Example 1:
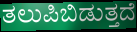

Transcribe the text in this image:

ತಲುಪಿಬಿಡುತ್ತದೆ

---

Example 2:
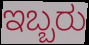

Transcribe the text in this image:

ಇಬ್ಬರು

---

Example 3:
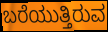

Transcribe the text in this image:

ಬರೆಯುತ್ತಿರುವ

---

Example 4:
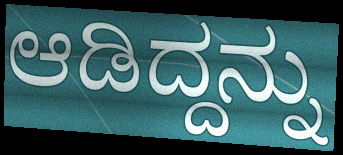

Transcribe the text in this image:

ಆಡಿದ್ದನ್ನು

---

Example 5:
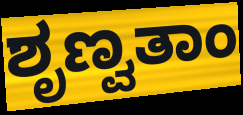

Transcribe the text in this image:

ಶೃಣ್ವತಾಂ